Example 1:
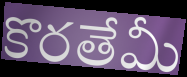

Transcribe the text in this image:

కొరతేమీ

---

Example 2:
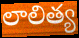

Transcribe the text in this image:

లాలిత్య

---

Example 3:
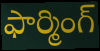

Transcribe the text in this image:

ఫార్మింగ్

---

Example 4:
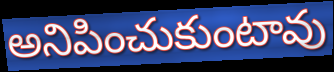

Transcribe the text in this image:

అనిపించుకుంటావు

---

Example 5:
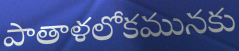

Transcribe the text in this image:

పాతాళలోకమునకు